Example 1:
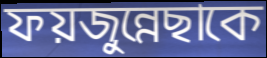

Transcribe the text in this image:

ফয়জুন্নেছাকে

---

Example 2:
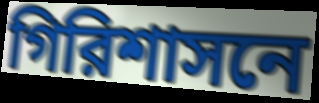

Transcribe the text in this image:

গিরিশাসনে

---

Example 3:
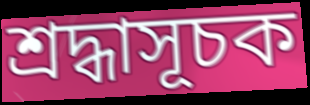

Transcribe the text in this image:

শ্রদ্ধাসূচক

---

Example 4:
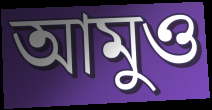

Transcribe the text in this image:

আমুও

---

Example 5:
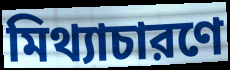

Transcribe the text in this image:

মিথ্যাচারণে